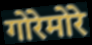
गोरेमोरे